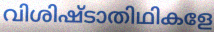
വിശിഷ്ടാതിഥികളേ